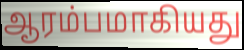
ஆரம்பமாகியது